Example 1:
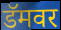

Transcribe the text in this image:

डॅमवर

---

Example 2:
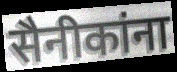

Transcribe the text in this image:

सैनीकांना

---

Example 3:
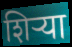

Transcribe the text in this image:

शिर्‍या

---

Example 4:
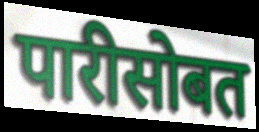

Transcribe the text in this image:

पारीसोबत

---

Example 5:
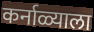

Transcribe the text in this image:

कर्नाळ्याला